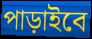
পাড়াইবে